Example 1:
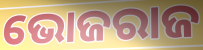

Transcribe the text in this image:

ଭୋଜରାଜ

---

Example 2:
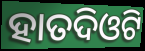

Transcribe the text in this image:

ହାତଦିଓଟି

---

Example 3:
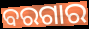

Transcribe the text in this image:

ବରଗାର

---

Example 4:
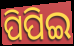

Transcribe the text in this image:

ପିପିଇ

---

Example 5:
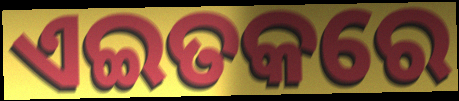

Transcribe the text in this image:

ଏଇତକରେ